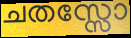
ചതസ്സോ